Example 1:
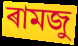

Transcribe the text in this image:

ৰামজু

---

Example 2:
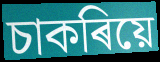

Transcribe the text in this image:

চাকৰিয়ে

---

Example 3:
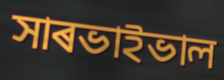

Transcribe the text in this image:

সাৰভাইভাল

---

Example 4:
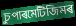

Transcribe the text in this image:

চুপাৰমেটিজিমৰ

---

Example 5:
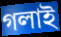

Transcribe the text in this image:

গলাই